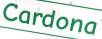
Cardona